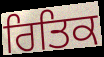
ਰਿਤਿਕ